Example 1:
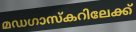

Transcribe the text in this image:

മഡഗാസ്കറിലേക്ക്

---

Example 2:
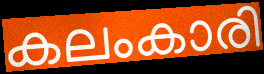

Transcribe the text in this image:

കലംകാരി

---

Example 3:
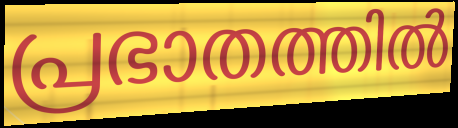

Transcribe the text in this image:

പ്രഭാതത്തിൽ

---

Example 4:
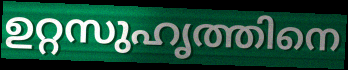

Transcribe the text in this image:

ഉറ്റസുഹൃത്തിനെ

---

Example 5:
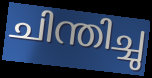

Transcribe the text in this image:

ചിന്തിച്ചു